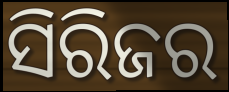
ସିରିଜର